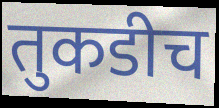
तुकडीच